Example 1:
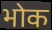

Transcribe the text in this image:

भोक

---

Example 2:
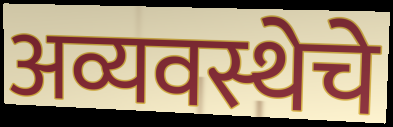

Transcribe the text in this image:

अव्यवस्थेचे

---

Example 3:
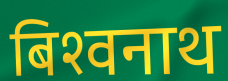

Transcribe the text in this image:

बिश्वनाथ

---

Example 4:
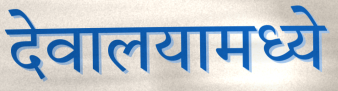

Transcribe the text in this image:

देवालयामध्ये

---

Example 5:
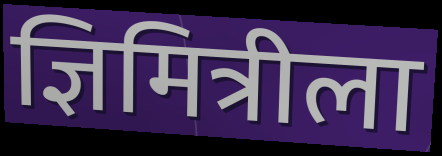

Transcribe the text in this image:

ज्ञिमित्रीला